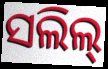
ସଲିଲ୍